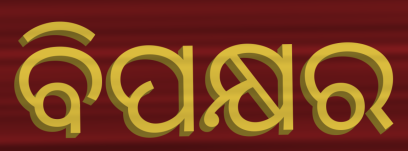
ବିପକ୍ଷର